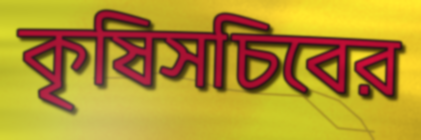
কৃষিসচিবের